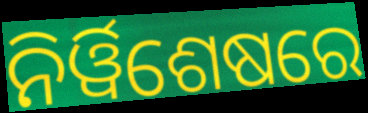
ନିର୍ୱିଶେଷରେ